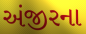
અંજીરના